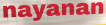
nayanan